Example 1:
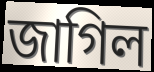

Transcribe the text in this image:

জাগিল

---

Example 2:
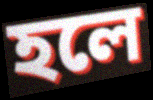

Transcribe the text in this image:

হলে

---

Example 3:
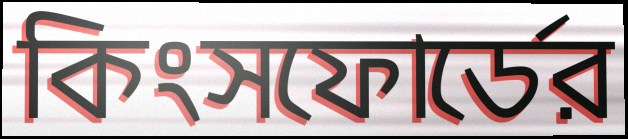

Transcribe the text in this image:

কিংসফোর্ডের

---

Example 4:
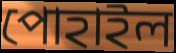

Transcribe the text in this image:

পোহাইল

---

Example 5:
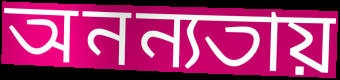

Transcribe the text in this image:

অনন্যতায়